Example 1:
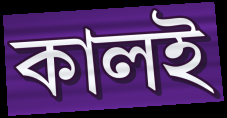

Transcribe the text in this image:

কালই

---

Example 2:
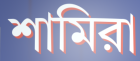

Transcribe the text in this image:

শামিরা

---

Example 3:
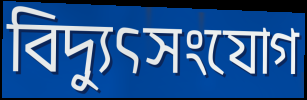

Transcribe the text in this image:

বিদ্যুৎসংযোগ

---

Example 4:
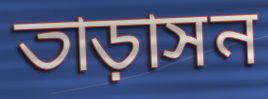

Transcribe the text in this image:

তাড়াসন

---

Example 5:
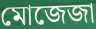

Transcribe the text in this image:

মোজেজা